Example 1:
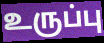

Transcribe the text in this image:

உருப்பு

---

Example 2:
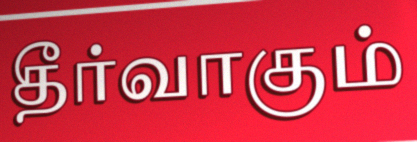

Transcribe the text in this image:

தீர்வாகும்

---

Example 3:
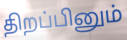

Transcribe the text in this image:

திறப்பினும்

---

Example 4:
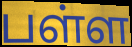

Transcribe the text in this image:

பள்ள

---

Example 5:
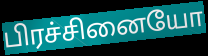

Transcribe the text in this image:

பிரச்சினையோ